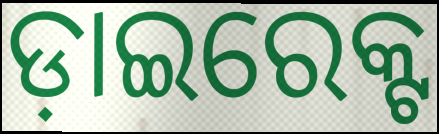
ଡ଼ାଇରେକ୍ଟ